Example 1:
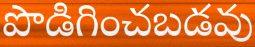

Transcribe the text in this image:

పొడిగించబడవు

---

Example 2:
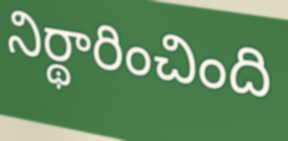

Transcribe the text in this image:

నిర్థారించింది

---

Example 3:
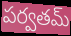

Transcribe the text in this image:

పర్వతమ్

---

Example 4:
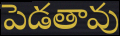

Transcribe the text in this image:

పెడతావు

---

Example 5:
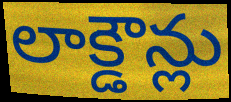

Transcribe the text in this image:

లాక్డౌన్లు